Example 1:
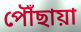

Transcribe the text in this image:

পৌঁছায়া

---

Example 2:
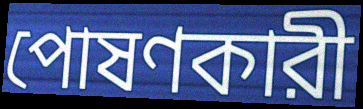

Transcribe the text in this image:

পোষণকারী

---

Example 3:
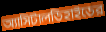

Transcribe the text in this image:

অ্যাসিটালডিহাইডের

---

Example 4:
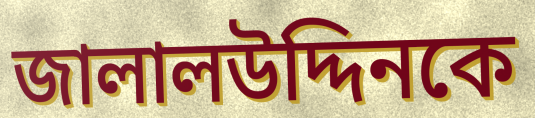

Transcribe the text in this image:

জালালউদ্দিনকে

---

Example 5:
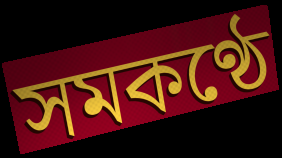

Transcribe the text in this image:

সমকণ্ঠে